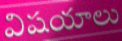
విషయాలు